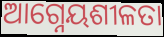
ଆଗ୍ନେୟଶୀଳତା